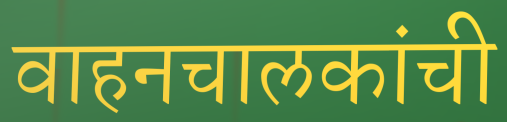
वाहनचालकांची